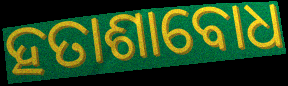
ହତାଶାବୋଧ